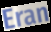
Eran